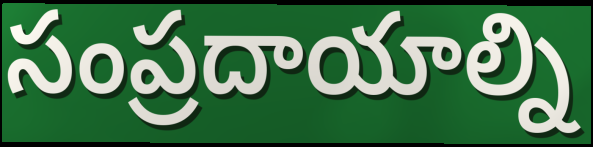
సంప్రదాయాల్ని